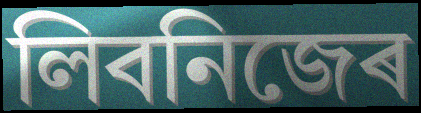
লিবনিজেৰ